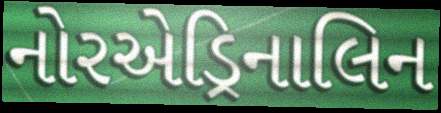
નોરએડ્રિનાલિન